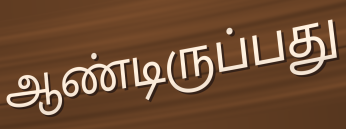
ஆண்டிருப்பது